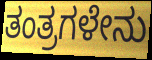
ತಂತ್ರಗಳೇನು